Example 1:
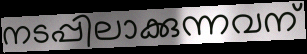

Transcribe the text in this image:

നടപ്പിലാക്കുന്നവന്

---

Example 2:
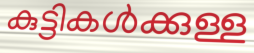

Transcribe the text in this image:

കുട്ടികൾക്കുള്ള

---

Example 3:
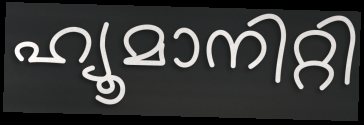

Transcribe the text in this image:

ഹ്യൂമാനിറ്റി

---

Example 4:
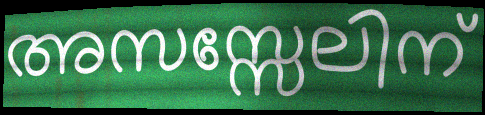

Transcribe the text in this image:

അസസ്സേലിന്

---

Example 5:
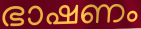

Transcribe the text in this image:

ഭാഷണം